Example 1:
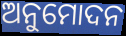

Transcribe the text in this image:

ଅନୁମୋଦନ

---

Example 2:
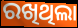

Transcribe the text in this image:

ରଖିଥିଲା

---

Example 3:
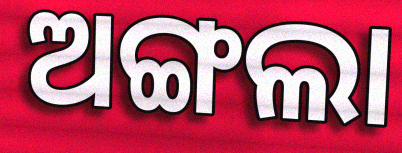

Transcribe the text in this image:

ଅଙ୍ଗଲା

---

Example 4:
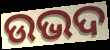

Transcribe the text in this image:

ଉଭଦ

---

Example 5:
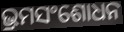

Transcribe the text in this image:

ଭ୍ରମସଂଶୋଧନ